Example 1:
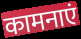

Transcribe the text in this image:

कामनाएं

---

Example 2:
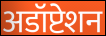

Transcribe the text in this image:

अडॉप्टेशन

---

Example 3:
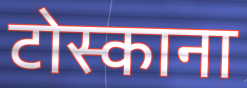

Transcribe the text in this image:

टोस्काना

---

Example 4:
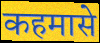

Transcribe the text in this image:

कहमासे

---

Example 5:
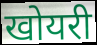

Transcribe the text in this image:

खोयरी